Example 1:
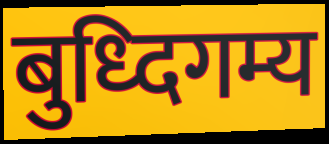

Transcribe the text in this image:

बुध्दिगम्य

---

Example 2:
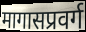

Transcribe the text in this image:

मागासप्रवर्ग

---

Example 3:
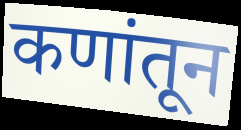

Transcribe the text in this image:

कणांतून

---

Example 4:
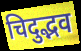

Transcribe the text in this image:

चिदुद्भव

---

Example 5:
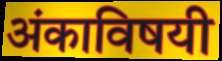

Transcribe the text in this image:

अंकाविषयी